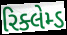
રિક્લેમ્ડ